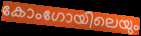
കോംഗോയിലെയും